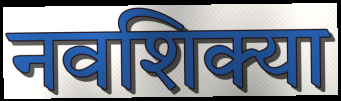
नवशिक्या